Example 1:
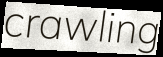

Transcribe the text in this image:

crawling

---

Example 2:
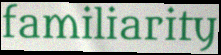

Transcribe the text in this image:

familiarity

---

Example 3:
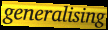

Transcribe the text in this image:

generalising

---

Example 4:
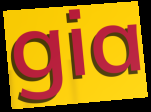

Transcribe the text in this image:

gia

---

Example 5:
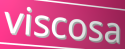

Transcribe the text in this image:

viscosa